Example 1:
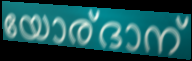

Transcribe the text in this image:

യോര്ദാന്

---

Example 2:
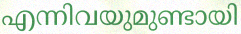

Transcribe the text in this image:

എന്നിവയുമുണ്ടായി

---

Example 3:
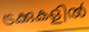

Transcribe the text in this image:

ട്രക്കുകളിൽ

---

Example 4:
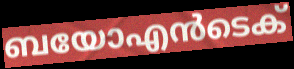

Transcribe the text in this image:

ബയോഎൻടെക്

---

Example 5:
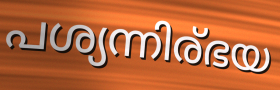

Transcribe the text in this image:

പശ്യന്നിര്ഭയ